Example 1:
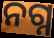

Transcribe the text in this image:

ନଗ୍ନ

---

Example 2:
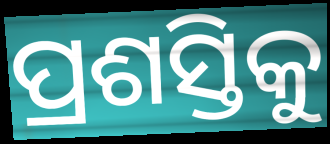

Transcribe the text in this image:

ପ୍ରଶସ୍ତିକୁ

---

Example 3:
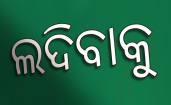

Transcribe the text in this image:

ଲଦିବାକୁ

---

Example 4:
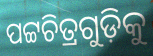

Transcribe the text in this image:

ପଟ୍ଟଚିତ୍ରଗୁଡ଼ିକୁ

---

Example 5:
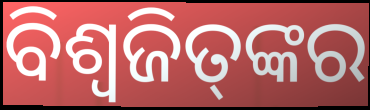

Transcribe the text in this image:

ବିଶ୍ଵଜିତ୍‌ଙ୍କର